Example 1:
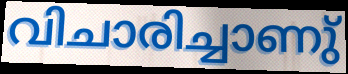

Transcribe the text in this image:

വിചാരിച്ചാണു്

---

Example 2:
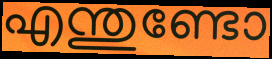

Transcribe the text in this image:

എന്തുണ്ടോ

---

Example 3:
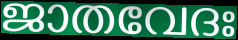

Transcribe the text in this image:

ജാതവേദഃ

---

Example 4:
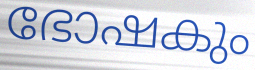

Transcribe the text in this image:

ഭോഷകും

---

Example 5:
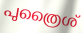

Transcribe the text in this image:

പുത്രൈശ്